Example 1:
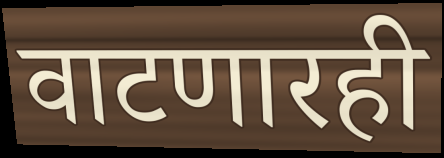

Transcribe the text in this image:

वाटणारही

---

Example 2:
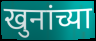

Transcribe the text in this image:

खुनांच्या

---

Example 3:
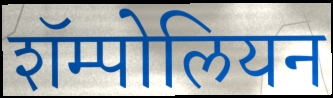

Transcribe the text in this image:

शॅम्पोलियन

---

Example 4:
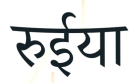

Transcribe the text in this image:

रुईया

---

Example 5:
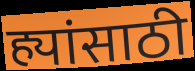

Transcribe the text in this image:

ह्यांसाठी